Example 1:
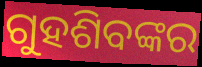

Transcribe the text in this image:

ଗୁହଶିବଙ୍କର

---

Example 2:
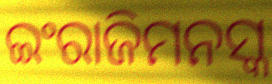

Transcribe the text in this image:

ଇଂରାଜିମନସ୍କ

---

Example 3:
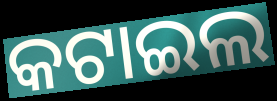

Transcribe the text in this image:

କଟାଇଲ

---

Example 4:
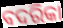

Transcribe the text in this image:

ବଦରିକା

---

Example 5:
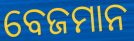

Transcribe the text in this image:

ବେଜମାନ